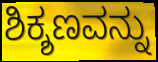
ಶಿಕ್ಶಣವನ್ನು